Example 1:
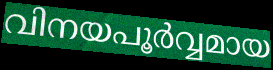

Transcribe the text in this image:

വിനയപൂർവ്വമായ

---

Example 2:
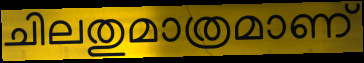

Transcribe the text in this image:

ചിലതുമാത്രമാണ്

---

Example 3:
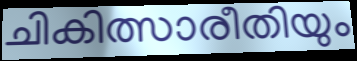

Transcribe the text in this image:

ചികിത്സാരീതിയും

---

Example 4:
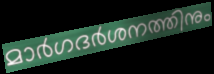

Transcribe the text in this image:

മാർഗദർശനത്തിനും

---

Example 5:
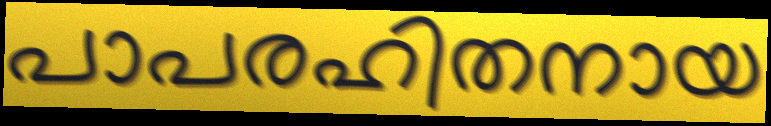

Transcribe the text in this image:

പാപരഹിതനായ